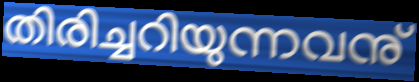
തിരിച്ചറിയുന്നവനു്